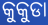
କୁକୁଡା